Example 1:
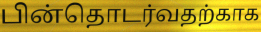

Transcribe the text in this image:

பின்தொடர்வதற்காக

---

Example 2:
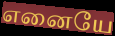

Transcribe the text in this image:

எனையே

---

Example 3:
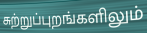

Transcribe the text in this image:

சுற்றுப்புறங்களிலும்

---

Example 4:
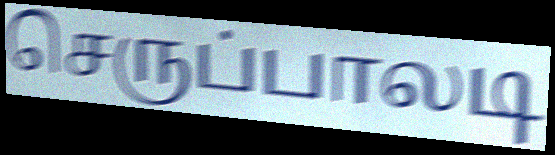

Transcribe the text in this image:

செருப்பாலடி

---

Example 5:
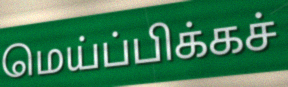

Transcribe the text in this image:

மெய்ப்பிக்கச்